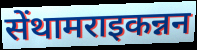
सेंथामराइकन्नन